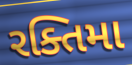
રક્તિમા